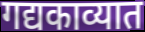
गद्यकाव्यात